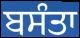
ਬਸੰਤਾ